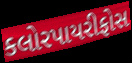
કલોરપાયરીફોસ